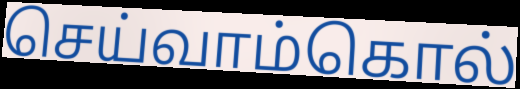
செய்வாம்கொல்